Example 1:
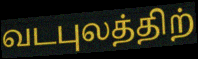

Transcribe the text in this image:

வடபுலத்திற்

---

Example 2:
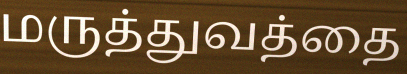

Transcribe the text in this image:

மருத்துவத்தை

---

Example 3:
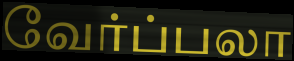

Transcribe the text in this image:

வேர்ப்பலா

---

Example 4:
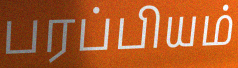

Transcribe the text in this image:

பரப்பியம்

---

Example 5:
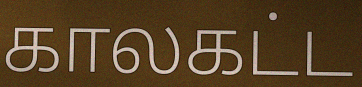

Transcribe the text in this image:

காலகட்ட